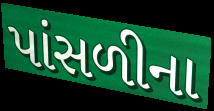
પાંસળીના